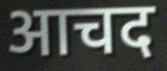
आचद